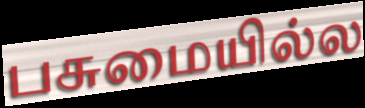
பசுமையில்ல